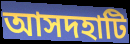
আসদহাটি